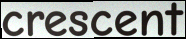
crescent